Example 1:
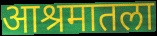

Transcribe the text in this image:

आश्रमातला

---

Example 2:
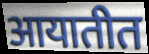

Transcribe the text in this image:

आयातीत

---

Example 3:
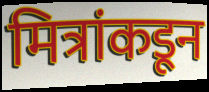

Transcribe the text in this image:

मित्रांकडून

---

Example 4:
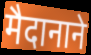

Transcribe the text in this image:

मैदानाने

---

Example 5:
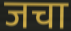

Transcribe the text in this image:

जचा